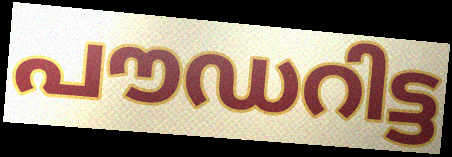
പൗഡറിട്ട